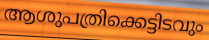
ആശുപത്രിക്കെട്ടിടവും